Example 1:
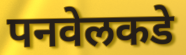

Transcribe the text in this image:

पनवेलकडे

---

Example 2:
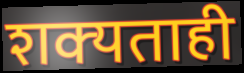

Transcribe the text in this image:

शक्‍यताही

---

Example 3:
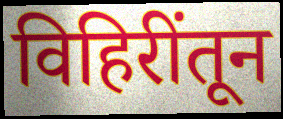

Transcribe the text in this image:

विहिरींतून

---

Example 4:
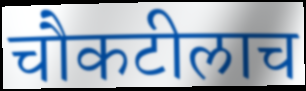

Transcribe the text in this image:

चौकटीलाच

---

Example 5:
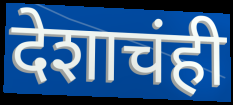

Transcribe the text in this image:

देशाचंही